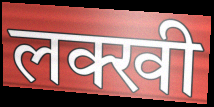
लक्खी